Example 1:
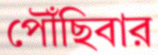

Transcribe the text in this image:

পৌঁছিবার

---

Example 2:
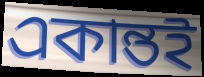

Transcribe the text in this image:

একান্তই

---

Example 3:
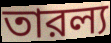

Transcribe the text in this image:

তারল্য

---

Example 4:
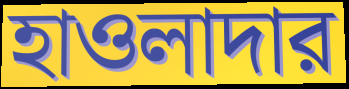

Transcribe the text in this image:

হাওলাদার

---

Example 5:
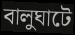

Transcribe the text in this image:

বালুঘাটে